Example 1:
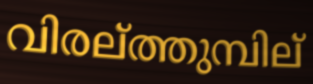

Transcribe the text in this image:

വിരല്ത്തുമ്പില്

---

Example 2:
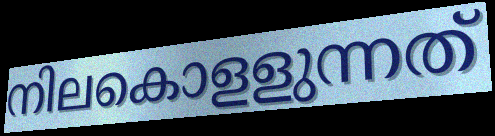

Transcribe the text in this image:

നിലകൊളളുന്നത്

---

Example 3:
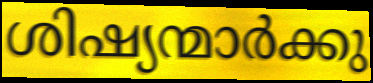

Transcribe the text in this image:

ശിഷ്യന്മാർക്കു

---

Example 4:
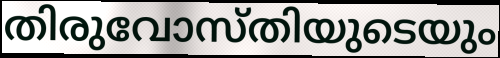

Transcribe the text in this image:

തിരുവോസ്തിയുടെയും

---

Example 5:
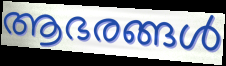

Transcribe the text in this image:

ആഭരങ്ങൾ